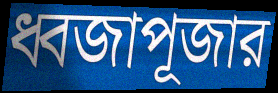
ধ্বজাপূজার